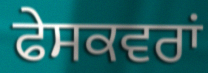
ਫੇਸਕਵਰਾਂ